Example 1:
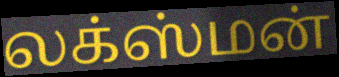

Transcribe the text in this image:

லக்ஸ்மன்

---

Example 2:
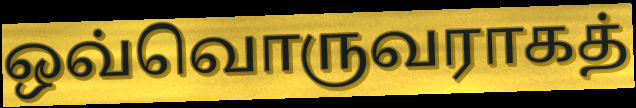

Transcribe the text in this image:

ஒவ்வொருவராகத்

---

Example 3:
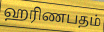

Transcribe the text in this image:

ஹரிணபதம்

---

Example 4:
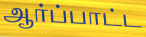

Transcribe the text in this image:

ஆர்ப்பாட்ட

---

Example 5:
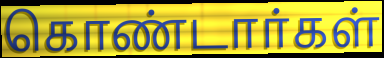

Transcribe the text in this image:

கொண்டார்கள்